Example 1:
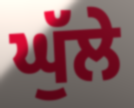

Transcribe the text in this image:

ਘੁੱਲੇ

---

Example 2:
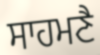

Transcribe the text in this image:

ਸਾਹਮਣੈ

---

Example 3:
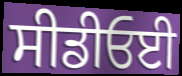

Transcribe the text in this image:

ਸੀਡੀਓਈ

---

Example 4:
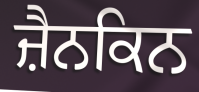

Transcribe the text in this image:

ਜ਼ੈਨਕਿਨ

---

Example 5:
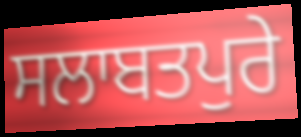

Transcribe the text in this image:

ਸਲਾਬਤਪੁਰੇ